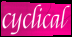
cyclical